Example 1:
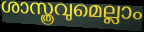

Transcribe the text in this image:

ശാസ്ത്രവുമെല്ലാം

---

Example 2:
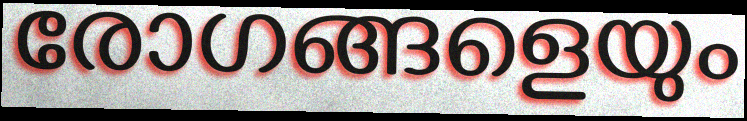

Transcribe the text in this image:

രോഗങ്ങളെയും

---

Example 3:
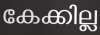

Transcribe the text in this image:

കേക്കില്ല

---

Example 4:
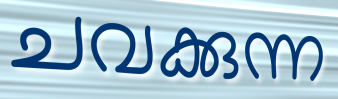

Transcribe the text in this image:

ചവക്കുന്ന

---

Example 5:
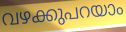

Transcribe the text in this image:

വഴക്കുപറയാം